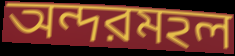
অন্দরমহল